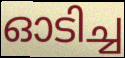
ഓടിച്ച